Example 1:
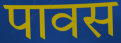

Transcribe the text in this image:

पावस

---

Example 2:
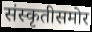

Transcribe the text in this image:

संस्कृतीसमोर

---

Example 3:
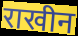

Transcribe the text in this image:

राखीन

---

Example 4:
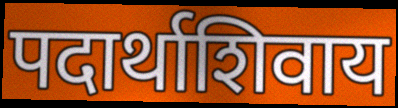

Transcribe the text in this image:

पदार्थाशिवाय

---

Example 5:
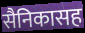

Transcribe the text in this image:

सैनिकासह